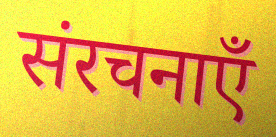
संरचनाएँ